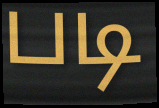
படி